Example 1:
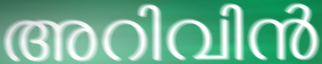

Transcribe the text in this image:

അറിവിൻ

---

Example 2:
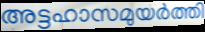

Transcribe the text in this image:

അട്ടഹാസമുയർത്തി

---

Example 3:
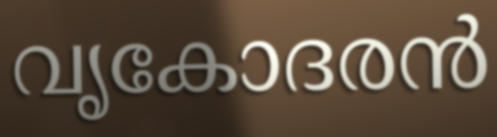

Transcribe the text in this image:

വൃകോദരൻ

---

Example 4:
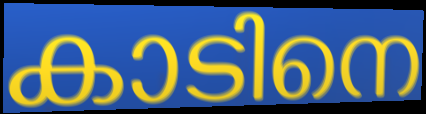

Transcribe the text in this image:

കാടിനെ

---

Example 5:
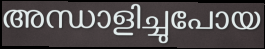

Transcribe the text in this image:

അന്ധാളിച്ചുപോയ